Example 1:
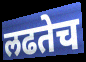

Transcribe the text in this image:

लढतेच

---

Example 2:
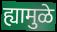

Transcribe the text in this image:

ह्यामुळे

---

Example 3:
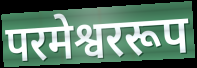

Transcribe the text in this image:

परमेश्वररूप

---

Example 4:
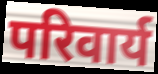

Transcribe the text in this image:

परिवार्य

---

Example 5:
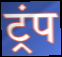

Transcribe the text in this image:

ट्रंप